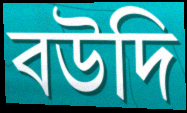
বউদি